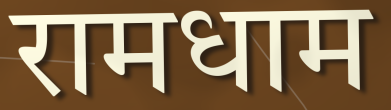
रामधाम